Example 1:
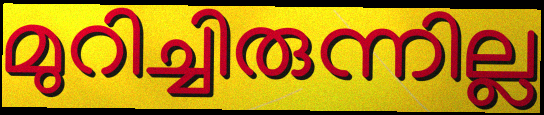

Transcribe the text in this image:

മുറിച്ചിരുന്നില്ല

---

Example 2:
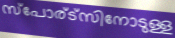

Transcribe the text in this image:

സ്പോര്ട്സിനോടുള്ള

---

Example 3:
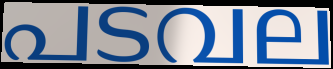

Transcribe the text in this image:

പടവല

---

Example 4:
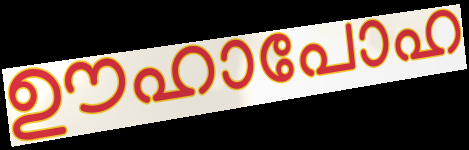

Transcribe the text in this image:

ഊഹാപോഹ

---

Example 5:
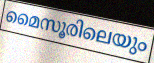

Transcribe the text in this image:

മൈസൂരിലെയും